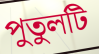
পুতুলটি